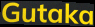
Gutaka